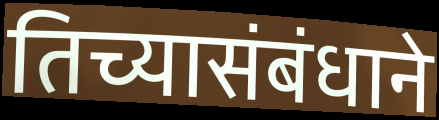
तिच्यासंबंधाने